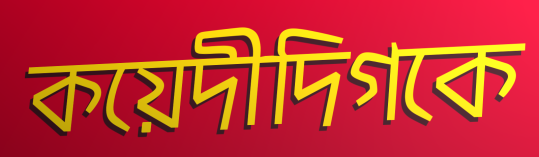
কয়েদীদিগকে